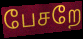
பேசறே